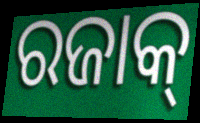
ରଜାକ୍